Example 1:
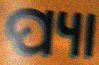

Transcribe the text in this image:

ପ୍ୟା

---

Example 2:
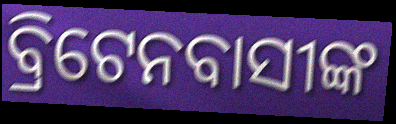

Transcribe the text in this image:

ବ୍ରିଟେନବାସୀଙ୍କ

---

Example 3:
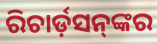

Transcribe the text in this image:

ରିଚାର୍ଡ଼ସନ୍‌ଙ୍କର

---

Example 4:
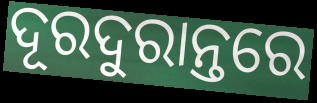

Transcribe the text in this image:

ଦୂରଦୁରାନ୍ତରେ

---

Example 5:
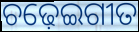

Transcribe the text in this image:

ଚଢ଼େଇଗୀତ